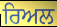
ਰਿਅਲ